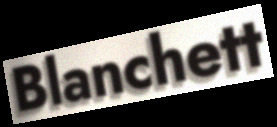
Blanchett